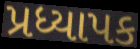
પ્રધ્યાપક